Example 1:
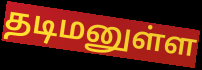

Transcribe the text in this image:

தடிமனுள்ள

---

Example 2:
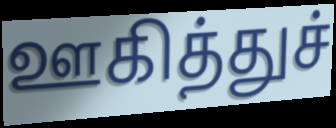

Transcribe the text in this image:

ஊகித்துச்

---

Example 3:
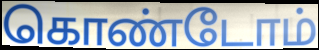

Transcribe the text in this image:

கொண்டோம்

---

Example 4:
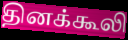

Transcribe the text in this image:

தினக்கூலி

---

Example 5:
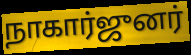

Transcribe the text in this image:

நாகார்ஜுனர்